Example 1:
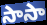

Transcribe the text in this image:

సాసా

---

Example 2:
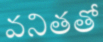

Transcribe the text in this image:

వనితతో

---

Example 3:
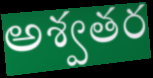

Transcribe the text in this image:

అశ్వతర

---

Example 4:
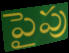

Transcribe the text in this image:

పైపు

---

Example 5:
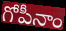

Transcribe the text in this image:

గోపీనాం